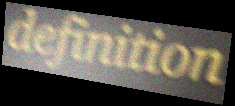
definition